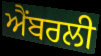
ਐਂਬਰਲੀ